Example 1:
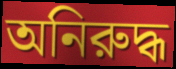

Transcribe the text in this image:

অনিরুদ্ধ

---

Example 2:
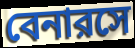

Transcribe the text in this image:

বেনারসে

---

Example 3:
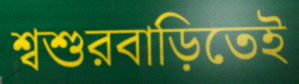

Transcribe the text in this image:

শ্বশুরবাড়িতেই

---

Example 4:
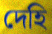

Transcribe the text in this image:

দেহি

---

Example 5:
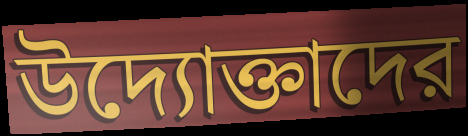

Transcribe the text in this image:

উদ্যোক্তাদের